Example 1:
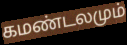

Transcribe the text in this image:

கமண்டலமும்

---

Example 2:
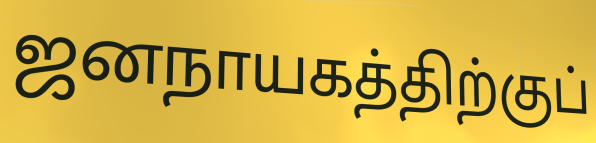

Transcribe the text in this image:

ஜனநாயகத்திற்குப்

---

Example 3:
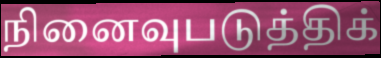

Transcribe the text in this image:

நினைவுபடுத்திக்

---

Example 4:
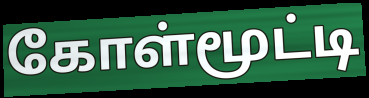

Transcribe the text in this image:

கோள்மூட்டி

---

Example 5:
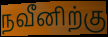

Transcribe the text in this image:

நவீனிற்கு